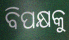
ବିପକ୍ଷକୁ